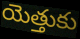
యెత్తుకు